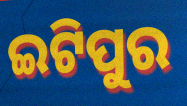
ଇଟିପୁର